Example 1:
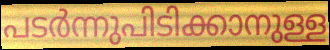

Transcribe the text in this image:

പടർന്നുപിടിക്കാനുള്ള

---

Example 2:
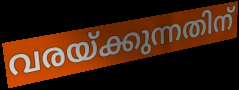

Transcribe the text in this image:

വരയ്ക്കുന്നതിന്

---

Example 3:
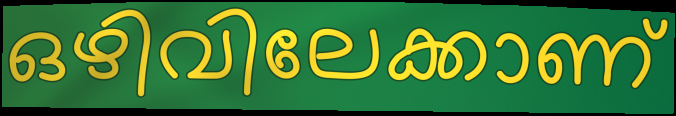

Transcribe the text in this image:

ഒഴിവിലേക്കാണ്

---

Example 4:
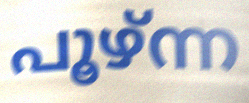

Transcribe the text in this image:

പൂഴ്ന്ന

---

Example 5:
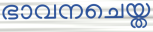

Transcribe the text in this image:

ഭാവനചെയ്ത